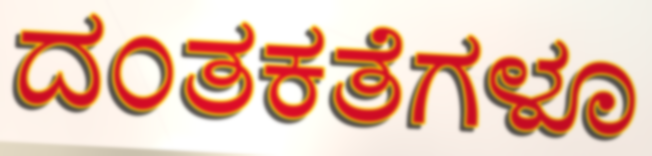
ದಂತಕತೆಗಳೂ